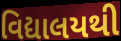
વિદ્યાલયથી